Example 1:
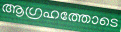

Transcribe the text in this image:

ആഗ്രഹത്തോടെ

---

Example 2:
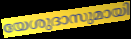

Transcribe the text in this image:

യേശുദാസുമായി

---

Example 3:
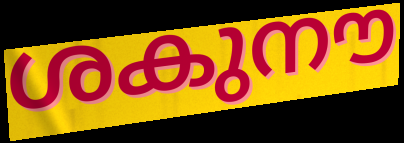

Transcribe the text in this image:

ശകുനൗ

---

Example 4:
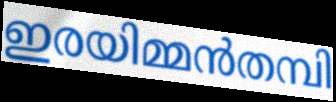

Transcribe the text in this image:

ഇരയിമ്മൻതമ്പി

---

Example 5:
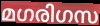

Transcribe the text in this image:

മഗരിഗസ